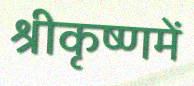
श्रीकृष्णमें